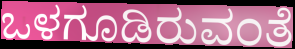
ಒಳಗೂಡಿರುವಂತೆ